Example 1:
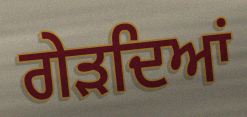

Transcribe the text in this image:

ਗੇੜਦਿਆਂ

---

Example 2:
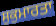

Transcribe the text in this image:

ਸੁਕੁਮਾਰਤਾ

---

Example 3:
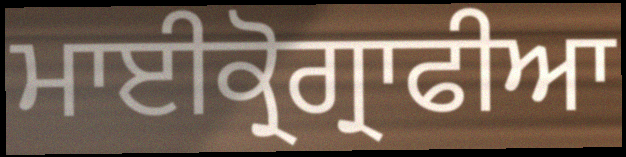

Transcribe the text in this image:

ਮਾਈਕ੍ਰੋਗ੍ਰਾਫੀਆ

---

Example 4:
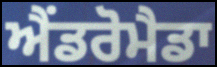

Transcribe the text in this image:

ਐਂਡਰੋਮੈਡਾ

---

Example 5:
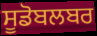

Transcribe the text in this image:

ਸੂਡੋਬਲਬਰ